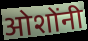
ओशोंनी